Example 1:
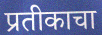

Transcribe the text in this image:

प्रतीकाचा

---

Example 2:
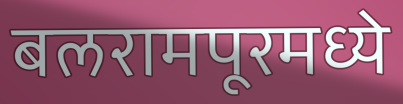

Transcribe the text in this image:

बलरामपूरमध्ये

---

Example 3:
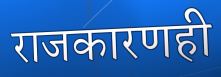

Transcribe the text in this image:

राजकारणही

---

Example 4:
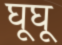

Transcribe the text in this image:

घूघू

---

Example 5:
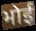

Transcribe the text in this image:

भोई